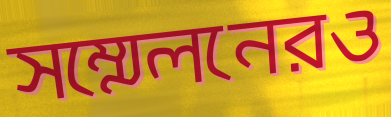
সম্মেলনেরও